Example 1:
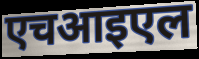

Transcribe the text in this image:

एचआइएल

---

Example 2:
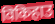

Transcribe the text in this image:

विकिहाउ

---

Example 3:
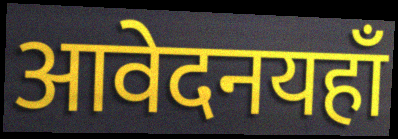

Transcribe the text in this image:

आवेदनयहाँ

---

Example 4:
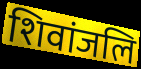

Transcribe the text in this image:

शिवांजलि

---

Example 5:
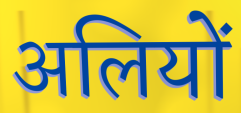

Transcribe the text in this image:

अलियों